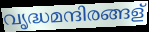
വൃദ്ധമന്ദിരങ്ങള്